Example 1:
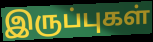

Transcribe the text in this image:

இருப்புகள்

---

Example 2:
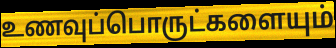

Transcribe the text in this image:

உணவுப்பொருட்களையும்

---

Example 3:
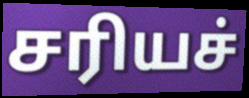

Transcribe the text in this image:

சரியச்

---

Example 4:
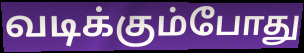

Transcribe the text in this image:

வடிக்கும்போது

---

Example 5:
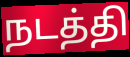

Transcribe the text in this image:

நடத்தி